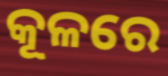
କୂଳରେ